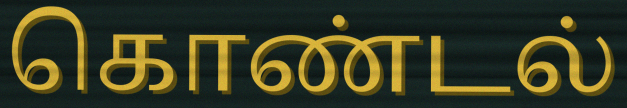
கொண்டல்